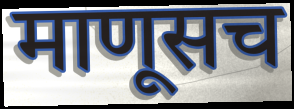
माणूसच